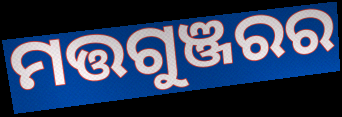
ମତ୍ତଗୁଞ୍ଜରର